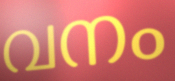
വനം